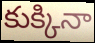
కుక్కినా